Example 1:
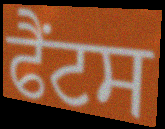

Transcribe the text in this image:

ਫੈਂਟਸ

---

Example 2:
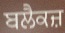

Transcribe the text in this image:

ਬਲੈਕਜ਼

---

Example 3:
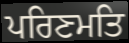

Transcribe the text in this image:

ਪਰਿਣਮਤਿ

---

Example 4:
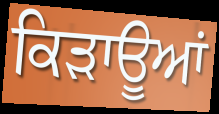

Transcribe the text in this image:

ਕਿੜਾਊਆਂ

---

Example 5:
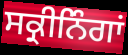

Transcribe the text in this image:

ਸਕ੍ਰੀਨਿੰਗਾਂ